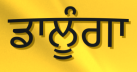
ਡਾਲੂੰਗਾ